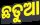
ଛତୁଆ